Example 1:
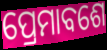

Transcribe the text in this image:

ପ୍ରେମାବଶେ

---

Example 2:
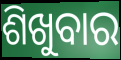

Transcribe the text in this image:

ଶିଖୁବାର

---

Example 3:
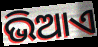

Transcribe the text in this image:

ଭିଆଏ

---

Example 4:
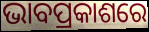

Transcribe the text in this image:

ଭାବପ୍ରକାଶରେ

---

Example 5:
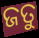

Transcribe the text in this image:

ଜତୁ